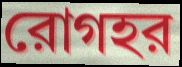
রোগহর